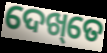
ଦେଖ୍‌ତେ